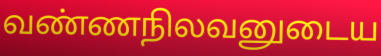
வண்ணநிலவனுடைய